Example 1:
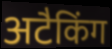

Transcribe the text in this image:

अटैकिंग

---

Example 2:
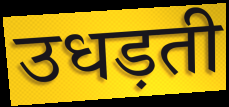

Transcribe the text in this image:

उधड़ती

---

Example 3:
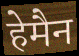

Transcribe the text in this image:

हेमैन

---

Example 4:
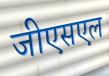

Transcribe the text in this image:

जीएसएल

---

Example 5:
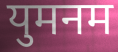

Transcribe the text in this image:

युमनम